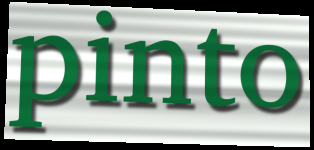
pinto